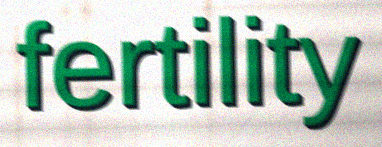
fertility